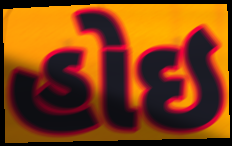
હોઇ